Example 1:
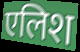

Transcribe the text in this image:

एलिश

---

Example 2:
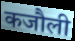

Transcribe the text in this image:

कजौली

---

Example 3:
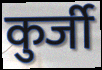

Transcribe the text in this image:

कुर्जी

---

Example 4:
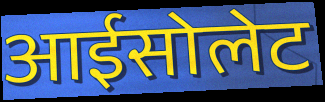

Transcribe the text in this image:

आईसोलेट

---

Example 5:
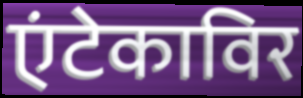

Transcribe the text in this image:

एंटेकाविर